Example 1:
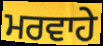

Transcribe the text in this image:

ਮਰਵਾਹੇ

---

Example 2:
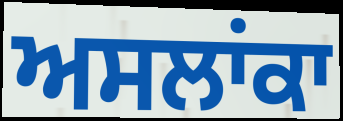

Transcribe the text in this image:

ਅਸਲਾਂਕਾ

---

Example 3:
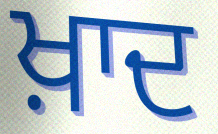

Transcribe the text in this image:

ਖ਼ਾਦ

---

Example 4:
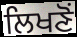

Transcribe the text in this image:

ਲਿਖਣੋਂ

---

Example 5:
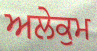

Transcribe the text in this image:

ਅਲੇਕੁਮ